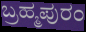
ಬ್ರಹ್ಮಪುರಂ